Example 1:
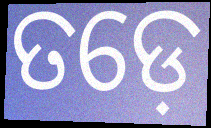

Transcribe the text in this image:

ତଡ଼େ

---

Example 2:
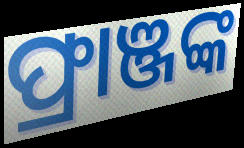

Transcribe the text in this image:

ଫ୍ରାଞ୍ଜଙ୍କ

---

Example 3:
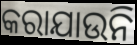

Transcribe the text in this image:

କରାଯାଉନି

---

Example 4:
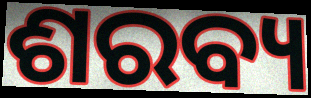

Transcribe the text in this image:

ଶରବ୍ୟ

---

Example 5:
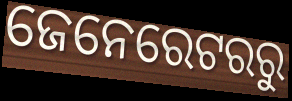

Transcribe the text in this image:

ଜେନେରେଟରରୁ